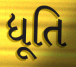
દ્યૂતિ